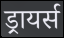
ड्रायर्स